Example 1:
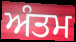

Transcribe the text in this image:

ਅੰਤਮ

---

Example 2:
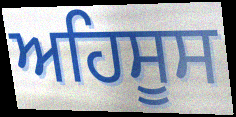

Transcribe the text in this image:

ਅਹਿਸੂਸ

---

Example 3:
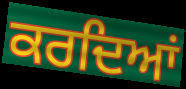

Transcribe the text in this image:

ਕਰਦਿਆਂ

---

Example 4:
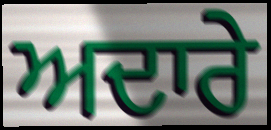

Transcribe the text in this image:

ਅਦਾਰੇ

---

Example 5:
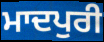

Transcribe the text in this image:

ਮਾਦਪੁਰੀ